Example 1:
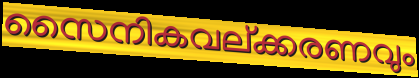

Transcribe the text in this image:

സൈനികവല്ക്കരണവും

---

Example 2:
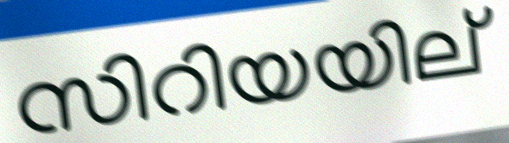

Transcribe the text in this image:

സിറിയയില്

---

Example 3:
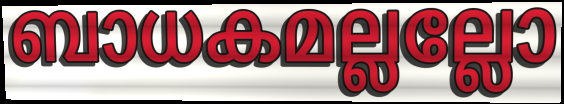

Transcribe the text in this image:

ബാധകമല്ലല്ലോ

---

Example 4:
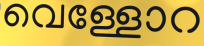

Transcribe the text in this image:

വെള്ളോറ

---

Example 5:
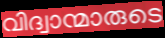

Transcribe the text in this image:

വിദ്വാന്മാരുടെ